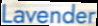
Lavender